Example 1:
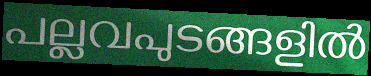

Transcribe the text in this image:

പല്ലവപുടങ്ങളിൽ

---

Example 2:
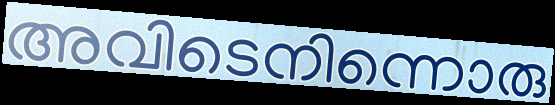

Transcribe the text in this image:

അവിടെനിന്നൊരു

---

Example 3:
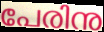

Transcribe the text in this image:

പേരിനു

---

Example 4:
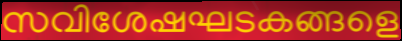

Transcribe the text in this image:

സവിശേഷഘടകങ്ങളെ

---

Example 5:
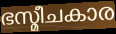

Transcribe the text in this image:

ഭസ്മീചകാര